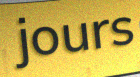
jours